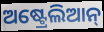
ଅଷ୍ଟ୍ରେଲିଆନ୍